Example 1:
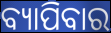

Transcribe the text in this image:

ବ୍ୟାପିବାର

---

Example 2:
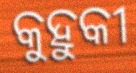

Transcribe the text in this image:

କୁହୁକୀ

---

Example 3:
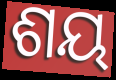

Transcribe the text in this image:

ଶୟ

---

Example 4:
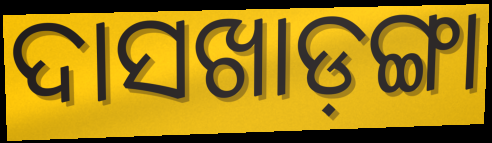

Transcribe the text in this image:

ଦାସଖାଡ଼ଙ୍ଗା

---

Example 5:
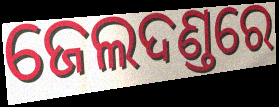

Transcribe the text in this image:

ଜେଲଦଣ୍ଡରେ